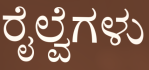
ರೈಲ್ವೆಗಳು